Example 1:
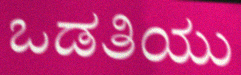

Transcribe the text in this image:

ಒಡತಿಯು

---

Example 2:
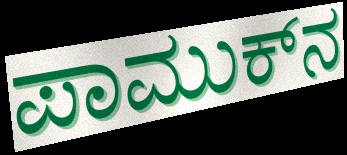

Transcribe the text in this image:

ಪಾಮುಕ್‍ನ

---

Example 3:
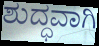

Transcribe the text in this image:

ಶುದ್ಧವಾಗಿ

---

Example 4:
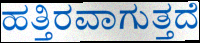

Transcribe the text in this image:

ಹತ್ತಿರವಾಗುತ್ತದೆ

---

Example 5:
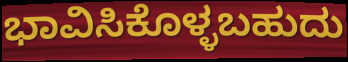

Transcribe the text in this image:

ಭಾವಿಸಿಕೊಳ್ಳಬಹುದು